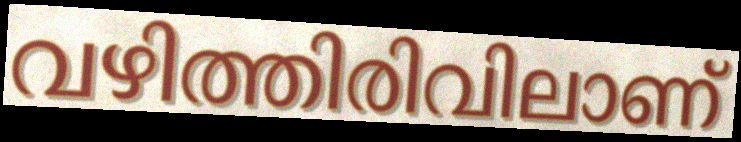
വഴിത്തിരിവിലാണ്